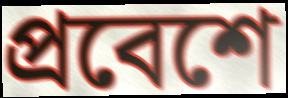
প্রবেশে